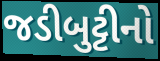
જડીબુટ્ટીનો